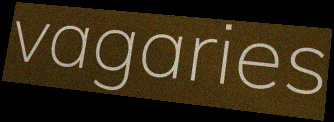
vagaries